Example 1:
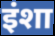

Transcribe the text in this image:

इंशा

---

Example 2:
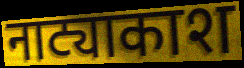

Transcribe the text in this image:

नाट्याकाश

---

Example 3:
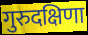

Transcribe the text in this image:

गुरुदक्षिणा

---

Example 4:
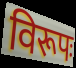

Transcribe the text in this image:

विरूपः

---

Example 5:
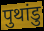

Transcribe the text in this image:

पुथांडु